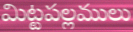
మిట్టపల్లములు